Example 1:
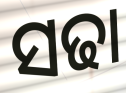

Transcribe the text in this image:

ସଢା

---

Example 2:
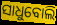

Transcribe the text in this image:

ସାଧୁବୋଲି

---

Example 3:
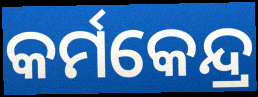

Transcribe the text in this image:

କର୍ମକେନ୍ଦ୍ର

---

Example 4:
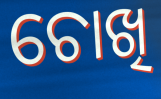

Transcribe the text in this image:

ଚୋଖି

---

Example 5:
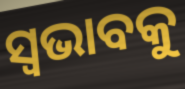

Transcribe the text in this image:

ସ୍ୱଭାବକୁ